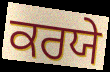
ਕਰਯੇ